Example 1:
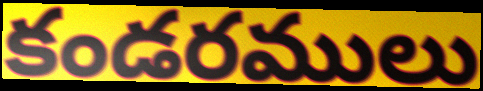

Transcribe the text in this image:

కండరములు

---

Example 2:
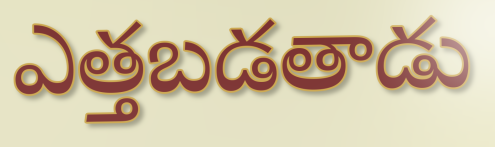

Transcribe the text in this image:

ఎత్తబడతాడు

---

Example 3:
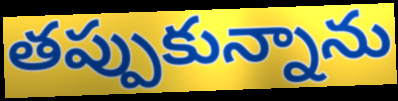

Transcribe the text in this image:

తప్పుకున్నాను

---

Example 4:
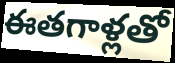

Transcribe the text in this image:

ఈతగాళ్లతో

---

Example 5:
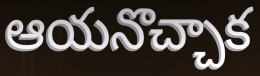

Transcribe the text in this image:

ఆయనొచ్చాక